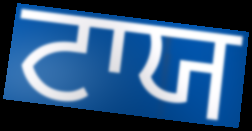
ਟਾਯ